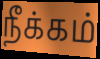
நீக்கம்